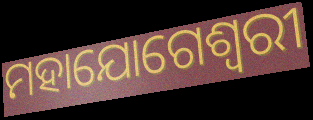
ମହାଯୋଗେଶ୍ୱରୀ